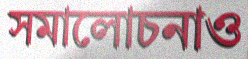
সমালোচনাও